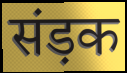
संड़क